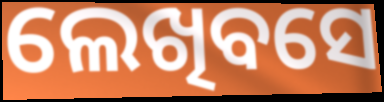
ଲେଖିବସେ